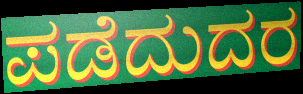
ಪಡೆದುದರ